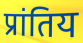
प्रांतिय